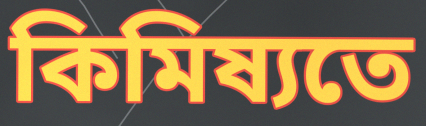
কিমিষ্যতে